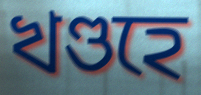
খণ্ডহে